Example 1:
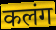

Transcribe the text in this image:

कलंग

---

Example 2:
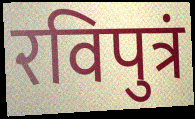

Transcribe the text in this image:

रविपुत्रं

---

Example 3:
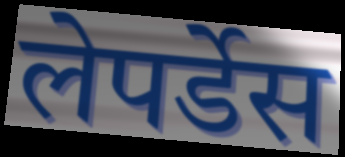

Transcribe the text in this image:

लेपर्डेस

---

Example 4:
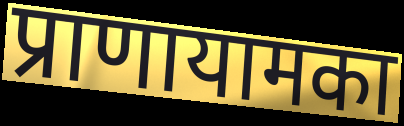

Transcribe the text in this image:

प्राणायामका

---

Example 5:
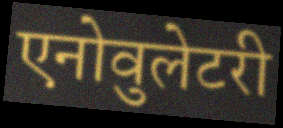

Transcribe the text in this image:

एनोवुलेटरी